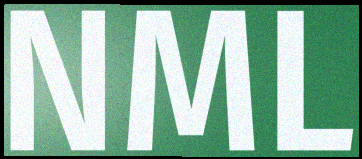
NML